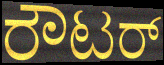
ರೌಟರ್